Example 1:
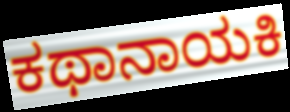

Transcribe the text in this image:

ಕಥಾನಾಯಕಿ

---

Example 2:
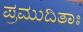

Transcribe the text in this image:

ಪ್ರಮುದಿತಾಃ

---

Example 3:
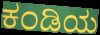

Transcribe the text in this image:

ಕಂಡಿಯ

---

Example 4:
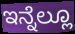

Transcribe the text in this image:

ಇನ್ನೆಲ್ಲೂ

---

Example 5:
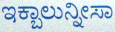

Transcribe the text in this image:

ಇಕ್ಬಾಲುನ್ನೀಸಾ